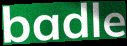
badle